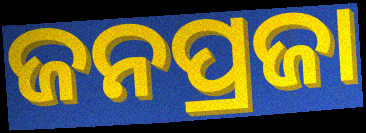
ଜନପ୍ରଜା